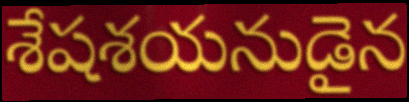
శేషశయనుడైన